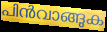
പിൻവാങ്ങുക